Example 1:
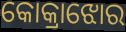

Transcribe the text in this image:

କୋକ୍ରାଝୋର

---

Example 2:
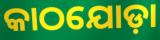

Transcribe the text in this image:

କାଠଯୋଡ଼ା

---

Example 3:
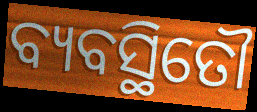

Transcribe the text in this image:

ବ୍ୟବସ୍ଥିତୌ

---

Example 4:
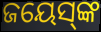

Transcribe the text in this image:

ଜୟେସ୍‌ଙ୍କ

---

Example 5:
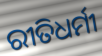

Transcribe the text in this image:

ରୀତିଧର୍ମୀ